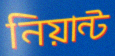
নিয়ান্ট